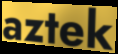
aztek